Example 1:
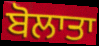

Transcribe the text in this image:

ਬੋਲਾਤਾ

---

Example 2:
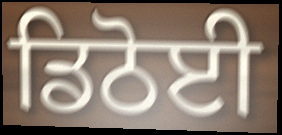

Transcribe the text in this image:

ਡਿਠੋਈ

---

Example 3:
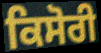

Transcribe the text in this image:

ਕਿਸੋਰੀ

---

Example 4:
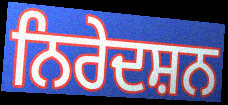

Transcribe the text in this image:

ਨਿਰੇਦਸ਼ਨ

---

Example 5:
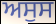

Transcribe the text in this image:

ਅਸੁਸ